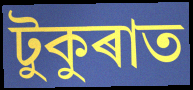
টুকুৰাত